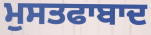
ਮੁਸਤਫਾਬਾਦ